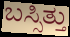
ಬಸ್ಸಿತ್ತು